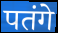
पतंगे